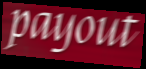
payout